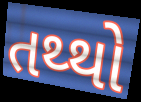
તથ્થો